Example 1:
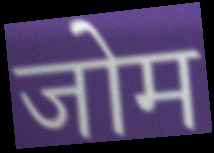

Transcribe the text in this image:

जोम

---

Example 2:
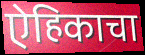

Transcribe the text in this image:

ऐहिकाचा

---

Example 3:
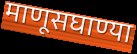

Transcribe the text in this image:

माणूसघाण्या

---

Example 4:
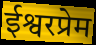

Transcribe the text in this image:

ईश्वरप्रेम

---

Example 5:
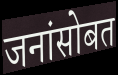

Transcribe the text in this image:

जनांसोबत